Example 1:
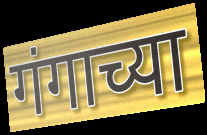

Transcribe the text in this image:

गंगाच्या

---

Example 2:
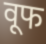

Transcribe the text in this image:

वूफ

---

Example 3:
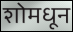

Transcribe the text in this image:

शोमधून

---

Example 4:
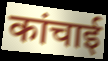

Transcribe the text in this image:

कांचाई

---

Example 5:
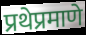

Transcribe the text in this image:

प्रथेप्रमाणे